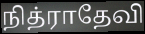
நித்ராதேவி